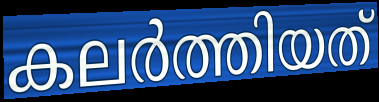
കലർത്തിയത്